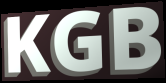
KGB